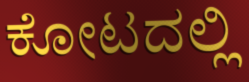
ಕೋಟದಲ್ಲಿ